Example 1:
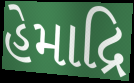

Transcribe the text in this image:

હેમાદ્રિ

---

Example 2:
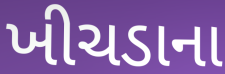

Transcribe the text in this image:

ખીચડાના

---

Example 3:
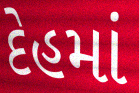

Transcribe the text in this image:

દેહમાં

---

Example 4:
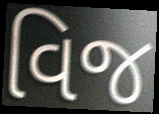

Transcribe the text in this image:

વિજ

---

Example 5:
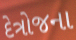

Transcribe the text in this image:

દેત્રોજના